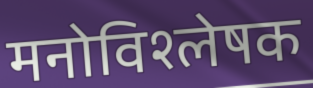
मनोविश्लेषक